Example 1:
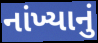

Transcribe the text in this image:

નાંખ્યાનું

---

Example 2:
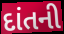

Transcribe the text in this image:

દાંતની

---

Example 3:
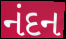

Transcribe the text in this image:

નંદન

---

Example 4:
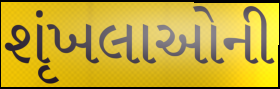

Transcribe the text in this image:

શૃંખલાઓની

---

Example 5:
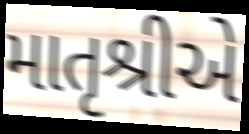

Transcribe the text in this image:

માતૃશ્રીએ